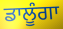
ਡਾਲੂੰਗਾ